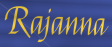
Rajanna